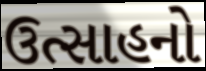
ઉત્સાહનો